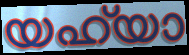
യഹ്‌യാ